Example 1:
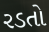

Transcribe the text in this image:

રડતો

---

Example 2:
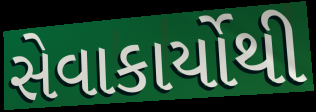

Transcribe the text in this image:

સેવાકાર્યોથી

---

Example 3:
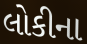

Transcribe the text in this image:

લોકીના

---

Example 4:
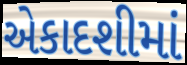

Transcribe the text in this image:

એકાદશીમાં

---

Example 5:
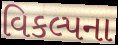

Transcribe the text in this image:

વિકલ્પના